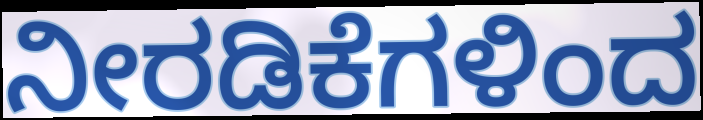
ನೀರಡಿಕೆಗಳಿಂದ